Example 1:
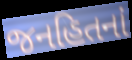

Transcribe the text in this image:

જનહિતનાં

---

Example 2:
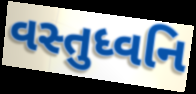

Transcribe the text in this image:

વસ્તુધ્વનિ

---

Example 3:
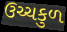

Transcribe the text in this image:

ઉચ્ચકુળ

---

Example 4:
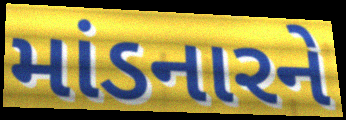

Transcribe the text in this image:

માંડનારને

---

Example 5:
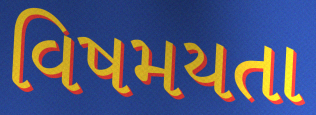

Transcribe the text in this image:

વિષમયતા